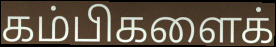
கம்பிகளைக்